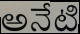
అనేటి